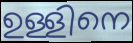
ഉള്ളിനെ